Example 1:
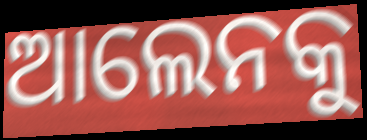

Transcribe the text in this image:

ଆଲେନକୁ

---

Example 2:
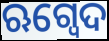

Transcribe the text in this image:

ଋଗ୍ବେଦ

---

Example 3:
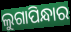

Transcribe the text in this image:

ଲୁଗାପିନ୍ଧାର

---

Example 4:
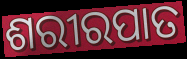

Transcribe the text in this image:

ଶରୀରପାତ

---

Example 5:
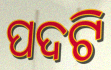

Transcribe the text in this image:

ପଦଟି